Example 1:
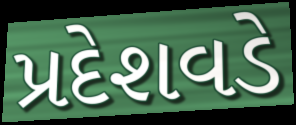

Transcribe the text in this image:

પ્રદેશવડે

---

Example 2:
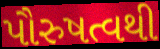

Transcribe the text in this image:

પૌરુષત્વથી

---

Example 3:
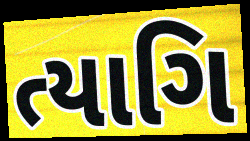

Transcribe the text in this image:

ત્યાગિ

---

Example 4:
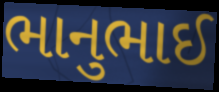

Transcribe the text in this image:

ભાનુભાઈ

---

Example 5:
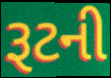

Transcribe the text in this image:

રૂટની